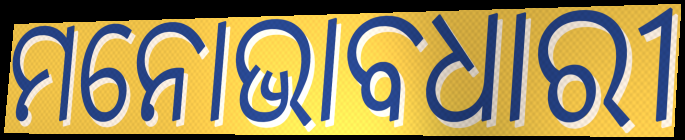
ମନୋଭାବଧାରୀ